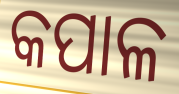
କପାଳ